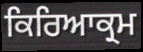
ਕਿਰਿਆਕ੍ਰਮ